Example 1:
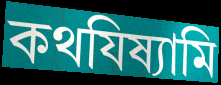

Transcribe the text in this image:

কথযিষ্যামি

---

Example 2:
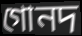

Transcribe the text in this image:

গোনদ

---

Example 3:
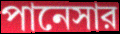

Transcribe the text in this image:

পানেসার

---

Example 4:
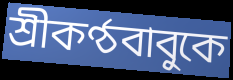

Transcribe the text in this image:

শ্রীকণ্ঠবাবুকে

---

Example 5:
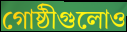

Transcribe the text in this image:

গোষ্ঠীগুলোও